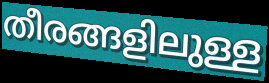
തീരങ്ങളിലുള്ള